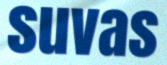
suvas